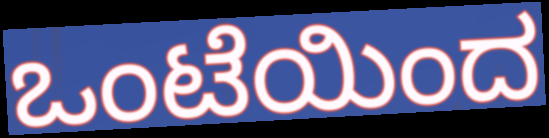
ಒಂಟೆಯಿಂದ